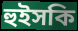
হুইসকি